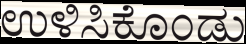
ಉಳಿಸಿಕೊಂಡು